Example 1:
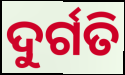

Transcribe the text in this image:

ଦୁର୍ଗତି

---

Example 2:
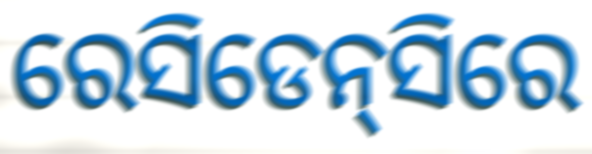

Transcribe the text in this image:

ରେସିଡେନ୍‌ସିରେ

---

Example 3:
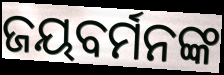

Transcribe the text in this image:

ଜୟବର୍ମନଙ୍କ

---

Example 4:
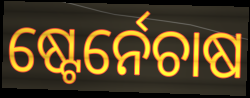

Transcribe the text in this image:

ଷ୍ଟେର୍ନେଚାଷ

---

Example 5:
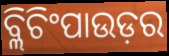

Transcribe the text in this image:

ବ୍ଲିଚିଂପାଉଡ଼ର